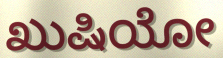
ಖುಷಿಯೋ